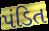
પંડિત